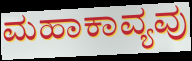
ಮಹಾಕಾವ್ಯವು